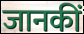
जानकीं